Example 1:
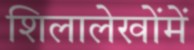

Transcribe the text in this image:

शिलालेखोंमें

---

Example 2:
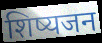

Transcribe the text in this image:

शिष्यजन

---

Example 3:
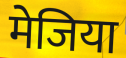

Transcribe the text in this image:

मेजिया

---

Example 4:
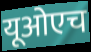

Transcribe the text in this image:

यूओएच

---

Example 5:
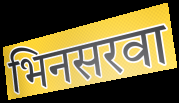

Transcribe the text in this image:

भिनसरवा